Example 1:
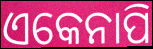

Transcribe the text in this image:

ଏକେନାପି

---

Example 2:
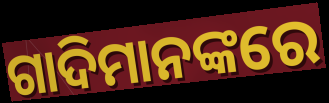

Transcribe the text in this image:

ଗାଦିମାନଙ୍କରେ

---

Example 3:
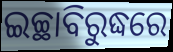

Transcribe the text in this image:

ଇଚ୍ଛାବିରୁଦ୍ଧରେ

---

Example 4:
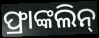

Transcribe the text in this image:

ଫ୍ରାଙ୍କଲିନ୍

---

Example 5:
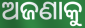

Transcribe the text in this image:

ଅଜଣାକୁ